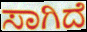
ಸಾಗಿದೆ